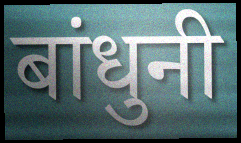
बांधुनी